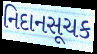
નિદાનસૂચક